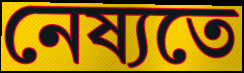
নেষ্যতে